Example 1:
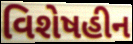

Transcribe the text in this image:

વિશેષહીન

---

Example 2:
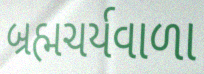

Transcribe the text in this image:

બ્રહ્મચર્યવાળા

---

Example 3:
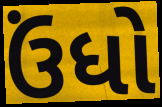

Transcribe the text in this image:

ઉંધો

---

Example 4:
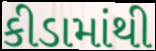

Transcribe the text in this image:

કીડામાંથી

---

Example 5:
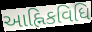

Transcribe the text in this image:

આહ્નિકવિધિ